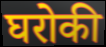
घरोकी